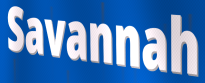
Savannah